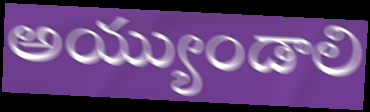
అయ్యుండాలి